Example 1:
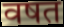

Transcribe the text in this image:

वषत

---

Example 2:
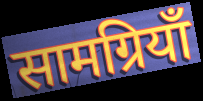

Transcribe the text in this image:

सामग्रियाँ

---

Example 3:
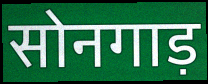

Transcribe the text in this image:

सोनगाड़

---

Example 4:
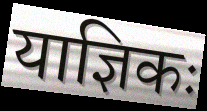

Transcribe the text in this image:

याज्ञिकः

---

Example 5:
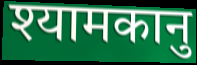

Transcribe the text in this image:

श्यामकानु